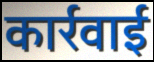
कार्रवाई